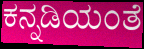
ಕನ್ನಡಿಯಂತೆ